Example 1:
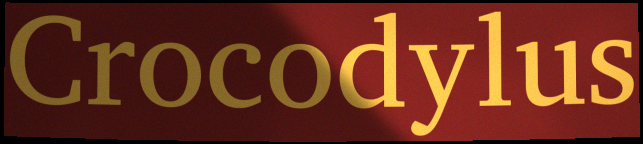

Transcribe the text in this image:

Crocodylus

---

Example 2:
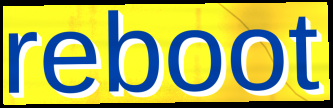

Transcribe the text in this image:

reboot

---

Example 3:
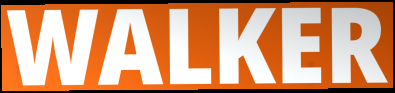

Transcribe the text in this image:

WALKER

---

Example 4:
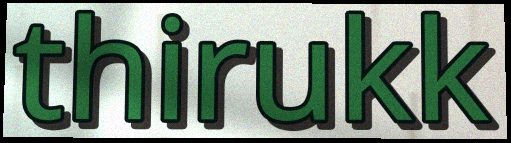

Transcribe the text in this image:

thirukk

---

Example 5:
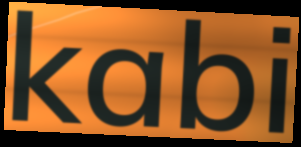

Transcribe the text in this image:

kabi